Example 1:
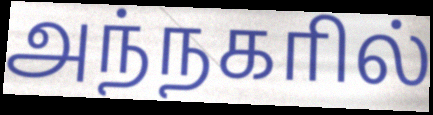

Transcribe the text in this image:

அந்நகரில்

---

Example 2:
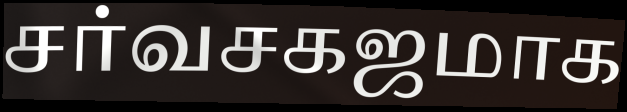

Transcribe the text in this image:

சர்வசகஜமாக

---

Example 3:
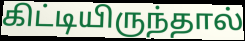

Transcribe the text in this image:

கிட்டியிருந்தால்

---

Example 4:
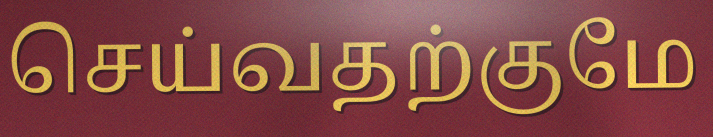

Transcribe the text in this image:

செய்வதற்குமே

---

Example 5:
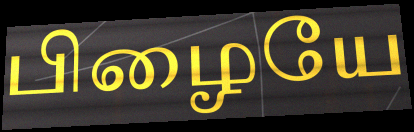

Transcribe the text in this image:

பிழையே